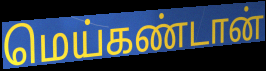
மெய்கண்டான்